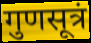
गुणसूत्रं